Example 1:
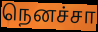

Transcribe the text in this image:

நெனச்சா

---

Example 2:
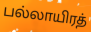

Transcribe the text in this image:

பல்லாயிரத்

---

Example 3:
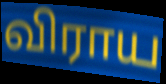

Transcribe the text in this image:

விராய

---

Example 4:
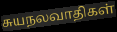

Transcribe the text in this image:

சுயநலவாதிகள்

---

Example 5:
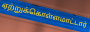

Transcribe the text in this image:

ஏற்றுக்கொள்ளமாட்டார்